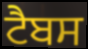
ਟੈਬਸ